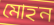
মোহন